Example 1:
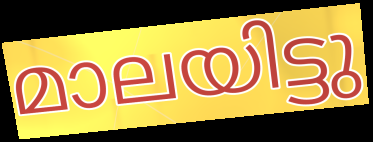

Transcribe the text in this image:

മാലയിട്ടു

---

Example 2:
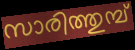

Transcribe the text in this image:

സാരിത്തുമ്പ്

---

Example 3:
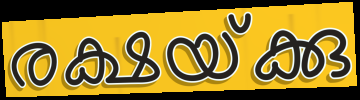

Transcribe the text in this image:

രക്ഷയ്‌ക്കു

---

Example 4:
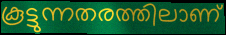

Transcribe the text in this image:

കൂട്ടുന്നതരത്തിലാണ്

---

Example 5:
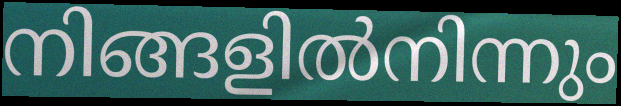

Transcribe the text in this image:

നിങ്ങളിൽനിന്നും